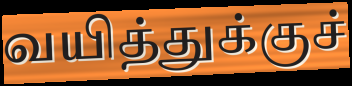
வயித்துக்குச்